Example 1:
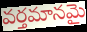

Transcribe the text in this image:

వర్తమానమై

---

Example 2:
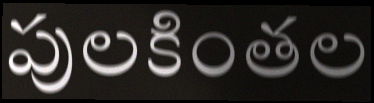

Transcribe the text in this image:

పులకింతల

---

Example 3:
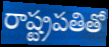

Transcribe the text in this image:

రాష్ట్రపతితో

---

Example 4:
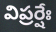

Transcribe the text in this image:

విప్రర్షేః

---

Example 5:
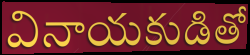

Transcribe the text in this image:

వినాయకుడితో